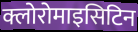
क्लोरोमाइसिटिन